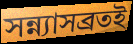
সন্ন্যাসব্রতই